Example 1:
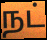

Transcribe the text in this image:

நட்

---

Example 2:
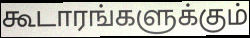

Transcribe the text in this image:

கூடாரங்களுக்கும்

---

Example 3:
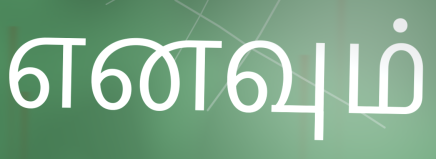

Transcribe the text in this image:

எனவும்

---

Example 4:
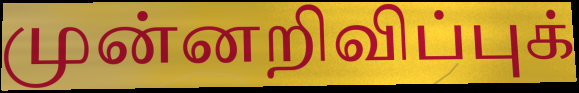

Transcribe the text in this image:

முன்னறிவிப்புக்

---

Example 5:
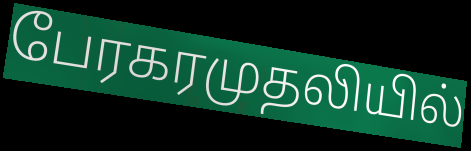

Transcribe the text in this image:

பேரகரமுதலியில்